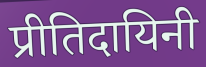
प्रीतिदायिनी